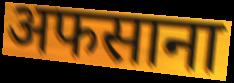
अफसाना